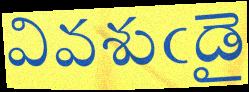
వివశుఁడై